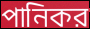
পানিকর